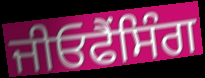
ਜੀਓਫੈਂਸਿੰਗ